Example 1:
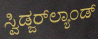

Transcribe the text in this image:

ಸ್ವಿಡ್ಜರ್‌ಲ್ಯಾಂಡ್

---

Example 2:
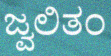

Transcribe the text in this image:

ಜ್ವಲಿತಂ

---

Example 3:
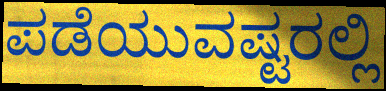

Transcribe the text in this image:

ಪಡೆಯುವಷ್ಟರಲ್ಲಿ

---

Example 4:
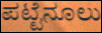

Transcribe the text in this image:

ಪಟ್ಟೆನೂಲು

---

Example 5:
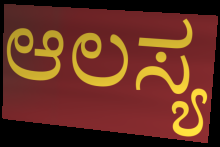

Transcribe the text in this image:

ಆಲಸ್ಯ